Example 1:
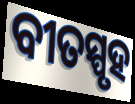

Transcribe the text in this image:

ବୀତସ୍ପୃହ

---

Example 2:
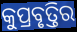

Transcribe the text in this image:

କୁପ୍ରବୃତ୍ତିର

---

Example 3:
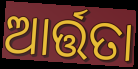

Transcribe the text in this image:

ଆର୍ତ୍ତତା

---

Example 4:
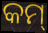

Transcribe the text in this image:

କମ୍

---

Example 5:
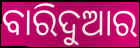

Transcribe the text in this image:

ବାରିଦୁଆର